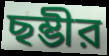
ছম্ভীর